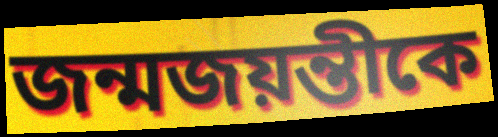
জন্মজয়ন্তীকে